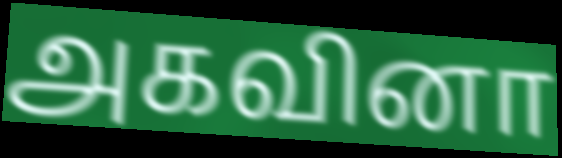
அகவினா